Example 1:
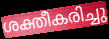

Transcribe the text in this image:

ശക്തീകരിച്ചു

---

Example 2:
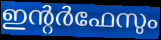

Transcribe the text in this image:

ഇന്റർഫേസും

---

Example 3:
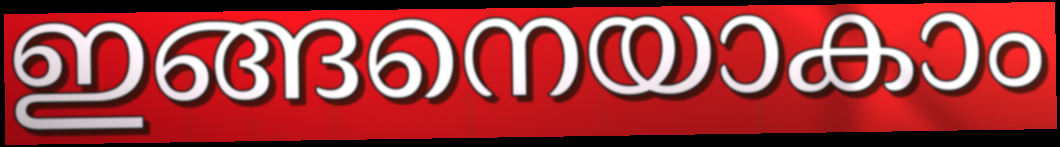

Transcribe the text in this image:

ഇങ്ങനെയാകാം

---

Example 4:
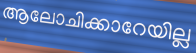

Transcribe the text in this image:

ആലോചിക്കാറേയില്ല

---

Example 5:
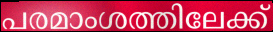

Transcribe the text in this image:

പരമാംശത്തിലേക്ക്